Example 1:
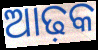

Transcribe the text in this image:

ଆଢ଼କ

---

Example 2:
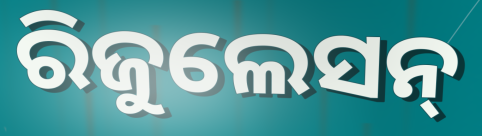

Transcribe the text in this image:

ରିଜୁଲେସନ୍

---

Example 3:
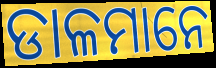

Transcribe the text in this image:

ଡାଳମାନେ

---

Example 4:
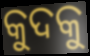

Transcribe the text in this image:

କୁଦକୁ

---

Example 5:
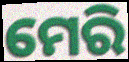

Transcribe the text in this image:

ମେରି